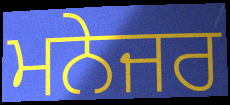
ਮਨੇਜਰ